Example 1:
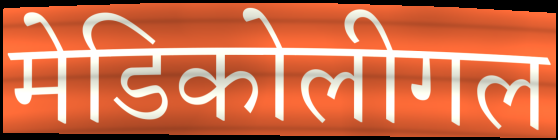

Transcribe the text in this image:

मेडिकोलीगल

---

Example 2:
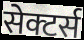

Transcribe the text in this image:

सेक्‍टर्स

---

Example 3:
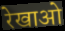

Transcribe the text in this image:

रेखाओ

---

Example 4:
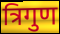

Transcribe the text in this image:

त्रिगुण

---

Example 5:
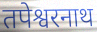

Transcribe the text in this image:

तपेश्वरनाथ